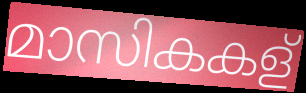
മാസികകള്